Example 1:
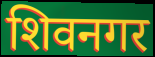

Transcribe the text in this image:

शिवनगर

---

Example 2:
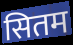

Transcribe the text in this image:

सितम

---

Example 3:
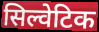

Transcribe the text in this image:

सिल्वेटिक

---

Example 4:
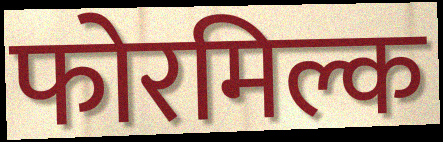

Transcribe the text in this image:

फोरमिल्क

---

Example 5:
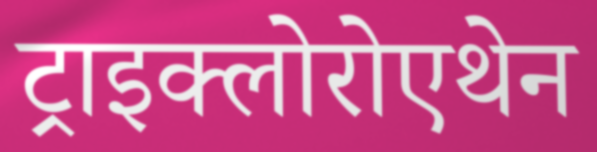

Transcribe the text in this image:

ट्राइक्लोरोएथेन